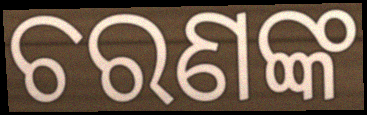
ଚରଣଙ୍କ